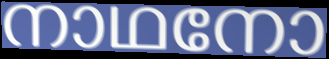
നാഥനോ